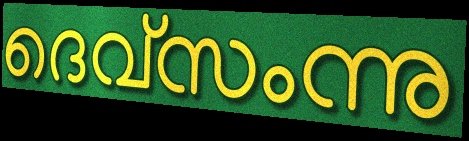
ദെവ്സംന്നു